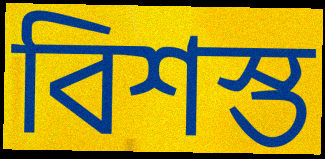
বিশস্ত